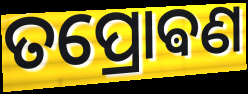
ତପ୍ରୋଵଣ